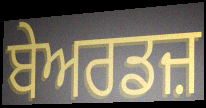
ਬੇਅਰਡਜ਼